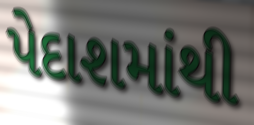
પેદાશમાંથી